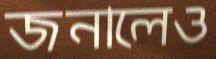
জনালেও